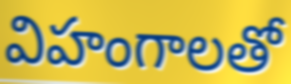
విహంగాలతో